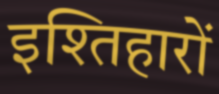
इश्तिहारों